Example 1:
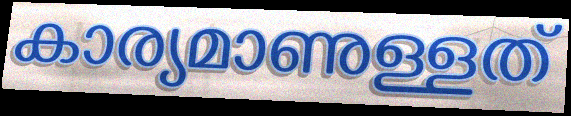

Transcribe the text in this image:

കാര്യമാണുള്ളത്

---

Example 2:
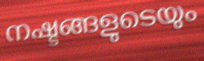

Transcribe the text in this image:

നഷ്ടങ്ങളുടെയും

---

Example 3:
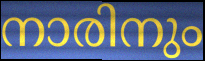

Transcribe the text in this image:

നാരിനും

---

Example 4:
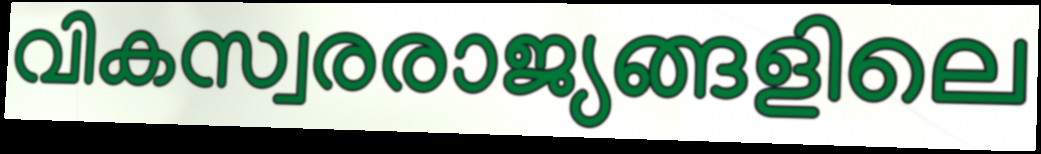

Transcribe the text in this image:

വികസ്വരരാജ്യങ്ങളിലെ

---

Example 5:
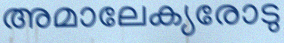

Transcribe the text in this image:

അമാലേക്യരോടു